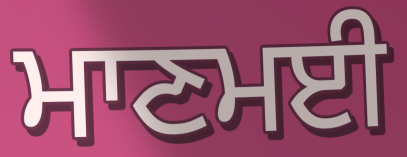
ਮਾਣਮਈ